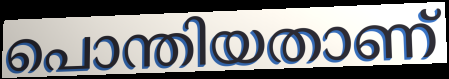
പൊന്തിയതാണ്